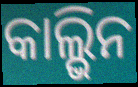
କାଲ୍ଭିନ